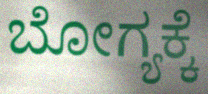
ಬೋಗ್ಯಕ್ಕೆ